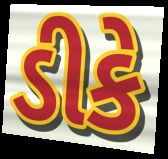
ડીકે